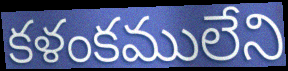
కళంకములేని